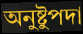
অনুষ্টুপদা